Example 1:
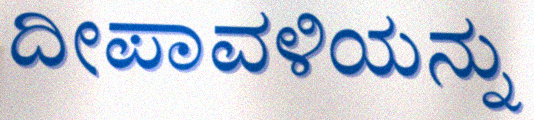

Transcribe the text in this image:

ದೀಪಾವಳಿಯನ್ನು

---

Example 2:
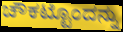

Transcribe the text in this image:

ಚೌಕಟ್ಟೊಂದನ್ನು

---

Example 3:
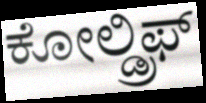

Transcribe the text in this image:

ಕೋಲ್ಡ್ರಿಫ್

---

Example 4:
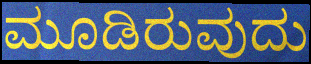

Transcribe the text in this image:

ಮೂಡಿರುವುದು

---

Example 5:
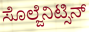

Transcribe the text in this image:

ಸೊಲ್ಜೆನಿಟ್ಸಿನ್